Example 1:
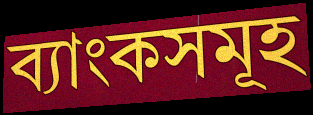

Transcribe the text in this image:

ব্যাংকসমূহ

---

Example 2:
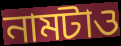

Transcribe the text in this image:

নামটাও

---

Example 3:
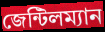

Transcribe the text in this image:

জেন্টিলম্যান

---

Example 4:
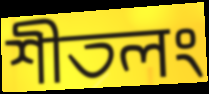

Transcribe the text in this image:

শীতলং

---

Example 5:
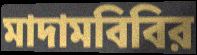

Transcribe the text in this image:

মাদামবিবির